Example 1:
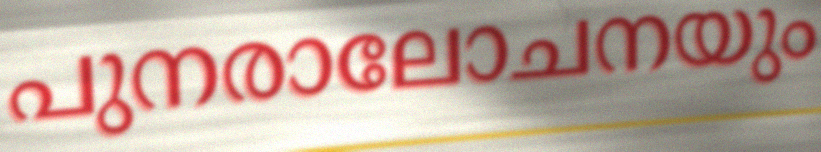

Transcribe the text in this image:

പുനരാലോചനയും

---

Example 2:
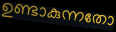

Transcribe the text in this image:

ഉണ്ടാകുന്നതോ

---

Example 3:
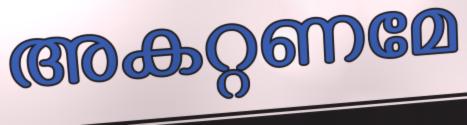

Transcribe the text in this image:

അകറ്റണമേ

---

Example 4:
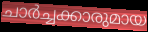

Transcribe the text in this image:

ചാർച്ചക്കാരുമായ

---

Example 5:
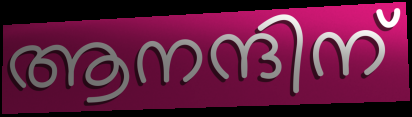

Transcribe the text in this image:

ആനന്ദിന്